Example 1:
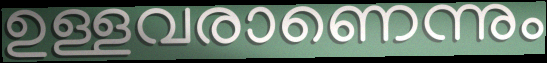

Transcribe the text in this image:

ഉള്ളവരാണെന്നും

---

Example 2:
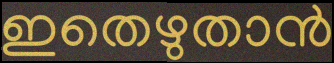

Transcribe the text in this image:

ഇതെഴുതാൻ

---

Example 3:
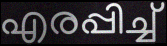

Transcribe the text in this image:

എരപ്പിച്ച്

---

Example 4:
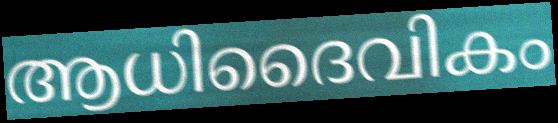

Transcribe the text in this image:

ആധിദൈവികം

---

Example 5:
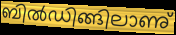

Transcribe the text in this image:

ബിൽഡിങ്ങിലാണു്